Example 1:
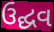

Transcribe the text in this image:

ઉદ્ઘવ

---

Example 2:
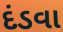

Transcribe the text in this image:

દંડવા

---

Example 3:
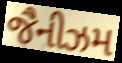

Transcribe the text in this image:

જૈનીઝમ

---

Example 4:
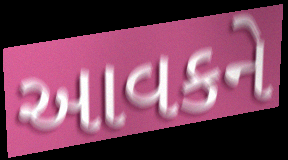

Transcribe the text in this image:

આવકને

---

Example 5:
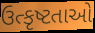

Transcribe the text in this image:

ઉત્કૃષ્ટતાઓ